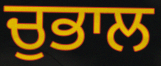
ਚੁਭਾਲ